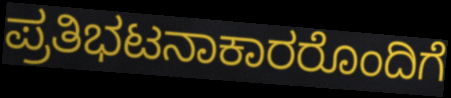
ಪ್ರತಿಭಟನಾಕಾರರೊಂದಿಗೆ